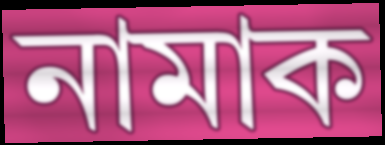
নামাক